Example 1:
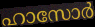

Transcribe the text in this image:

ഹാസോർ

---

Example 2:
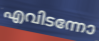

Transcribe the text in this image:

എവിടന്നോ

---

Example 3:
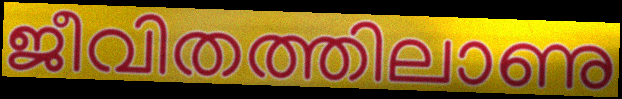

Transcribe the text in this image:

ജീവിതത്തിലാണു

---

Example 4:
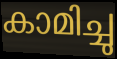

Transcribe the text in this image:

കാമിച്ചു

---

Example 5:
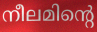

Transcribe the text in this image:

നീലമിന്റെ